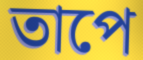
তাপে